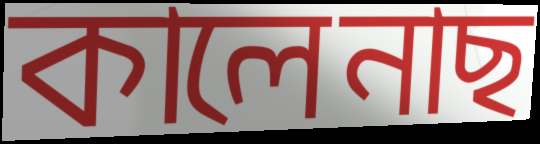
কালেনাছ